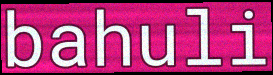
bahuli